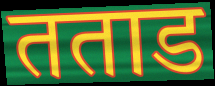
तताड